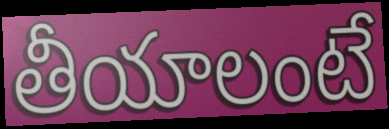
తీయాలంటే